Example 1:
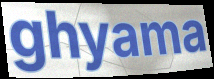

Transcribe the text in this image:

ghyama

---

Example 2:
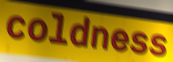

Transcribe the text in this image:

coldness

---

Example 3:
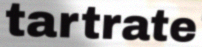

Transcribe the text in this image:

tartrate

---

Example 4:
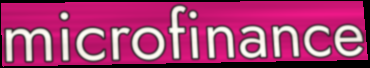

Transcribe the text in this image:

microfinance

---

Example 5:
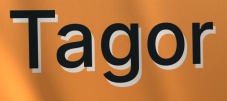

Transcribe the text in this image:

Tagor